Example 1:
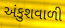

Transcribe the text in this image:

અંકુશવાળી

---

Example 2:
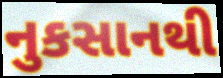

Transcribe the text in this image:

નુકસાનથી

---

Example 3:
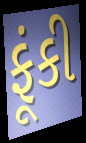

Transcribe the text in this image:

ફૂંકી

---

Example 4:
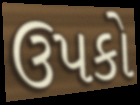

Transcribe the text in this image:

ઉપકો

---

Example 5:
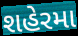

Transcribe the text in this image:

શહેરમા